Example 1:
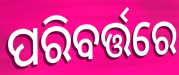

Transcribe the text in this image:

ପରିବର୍ତ୍ତରେ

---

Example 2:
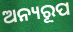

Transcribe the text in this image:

ଅନ୍ୟରୂପ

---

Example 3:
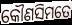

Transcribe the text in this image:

କୌଣସିମତେ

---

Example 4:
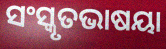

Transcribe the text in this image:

ସଂସ୍କୃତଭାଷୟା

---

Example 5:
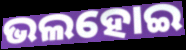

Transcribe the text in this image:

ଭଲହୋଇ